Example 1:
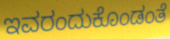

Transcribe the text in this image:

ಇವರಂದುಕೊಂಡಂತೆ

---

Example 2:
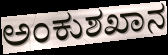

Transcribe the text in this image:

ಅಂಕುಶಖಾನ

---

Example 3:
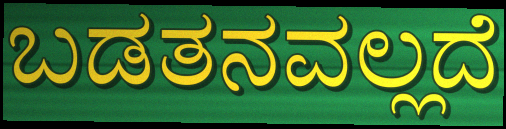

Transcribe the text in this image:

ಬಡತನವಲ್ಲದೆ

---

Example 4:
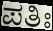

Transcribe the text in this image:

ಪತಿಃ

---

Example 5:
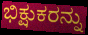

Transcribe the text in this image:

ಭಿಕ್ಷುಕರನ್ನು